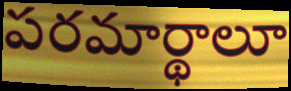
పరమార్థాలూ